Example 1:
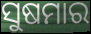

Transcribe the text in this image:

ସୁଷମାର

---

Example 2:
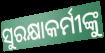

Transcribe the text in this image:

ସୁରକ୍ଷାକର୍ମୀଙ୍କୁ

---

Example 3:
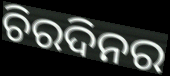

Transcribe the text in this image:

ଚିରଦିନର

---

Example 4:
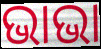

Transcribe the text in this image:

ଭାଭା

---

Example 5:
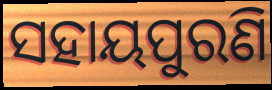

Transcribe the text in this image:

ସହାୟପୁରଣି